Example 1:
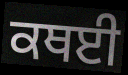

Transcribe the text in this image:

ਕਥਈ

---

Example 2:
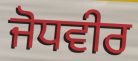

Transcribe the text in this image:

ਜੋਧਵੀਰ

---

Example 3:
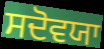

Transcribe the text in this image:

ਸਦੋਵਯਾ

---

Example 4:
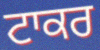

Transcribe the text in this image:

ਟਾਕਰ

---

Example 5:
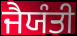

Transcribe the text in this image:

ਜੈਯੰਤੀ